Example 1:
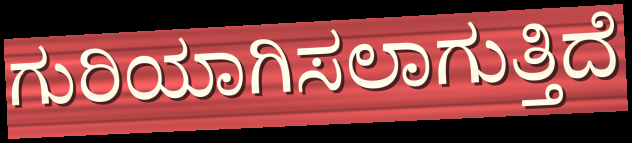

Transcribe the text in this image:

ಗುರಿಯಾಗಿಸಲಾಗುತ್ತಿದೆ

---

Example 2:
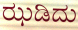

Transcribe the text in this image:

ಝಡಿದು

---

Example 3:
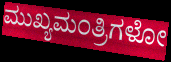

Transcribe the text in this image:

ಮುಖ್ಯಮಂತ್ರಿಗಳೋ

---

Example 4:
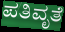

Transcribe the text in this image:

ಪತಿವೃತೆ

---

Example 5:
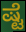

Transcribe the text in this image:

ಷ್ಟೆ